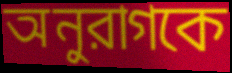
অনুরাগকে